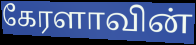
கேரளாவின்